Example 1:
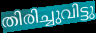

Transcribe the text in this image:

തിരിച്ചുവിട്ടു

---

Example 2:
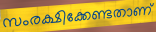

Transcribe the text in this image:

സംരക്ഷിക്കേണ്ടതാണ്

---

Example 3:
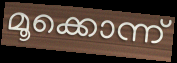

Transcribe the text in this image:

മൂക്കൊന്ന്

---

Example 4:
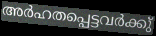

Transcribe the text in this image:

അർഹതപ്പെട്ടവർക്കു്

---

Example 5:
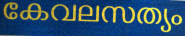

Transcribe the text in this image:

കേവലസത്യം